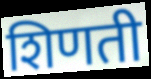
शिणती